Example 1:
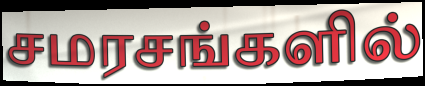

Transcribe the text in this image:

சமரசங்களில்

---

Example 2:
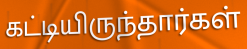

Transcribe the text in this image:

கட்டியிருந்தார்கள்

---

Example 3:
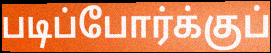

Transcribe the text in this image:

படிப்போர்க்குப்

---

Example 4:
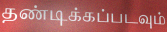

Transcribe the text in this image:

தண்டிக்கப்படவும்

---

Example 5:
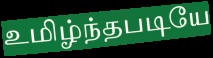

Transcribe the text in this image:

உமிழ்ந்தபடியே